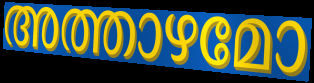
അത്താഴമോ